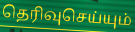
தெரிவுசெய்யும்